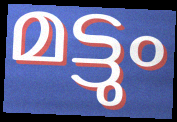
മട്ടും